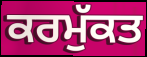
ਕਰਮੁੱਕਤ